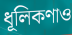
ধূলিকণাও